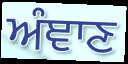
ਅੰਞਾਣ